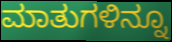
ಮಾತುಗಳಿನ್ನೂ